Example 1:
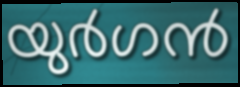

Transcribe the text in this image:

യുർഗൻ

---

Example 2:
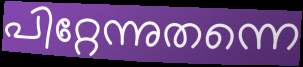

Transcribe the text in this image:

പിറ്റേന്നുതന്നെ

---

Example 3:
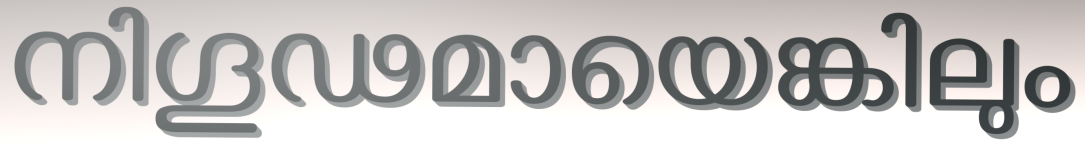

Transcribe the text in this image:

നിഗൂഢമായെങ്കിലും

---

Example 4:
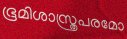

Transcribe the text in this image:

ഭൂമിശാസ്ത്രപരമോ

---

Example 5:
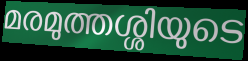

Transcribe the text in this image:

മരമുത്തശ്ശിയുടെ